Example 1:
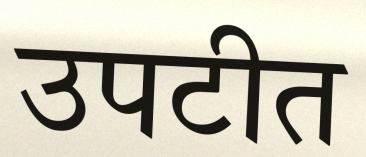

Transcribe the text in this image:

उपटीत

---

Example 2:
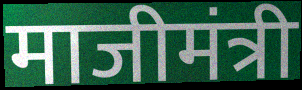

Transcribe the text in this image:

माजीमंत्री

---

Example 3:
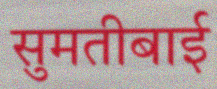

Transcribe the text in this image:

सुमतीबाई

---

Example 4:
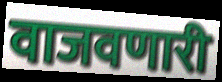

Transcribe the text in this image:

वाजवणारी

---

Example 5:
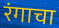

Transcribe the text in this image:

रंगाचा